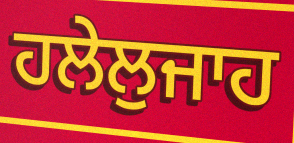
ਹਲੇਲੁਜਾਹ